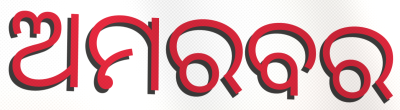
ଅମରବର